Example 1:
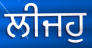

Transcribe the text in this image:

ਲੀਜਹੁ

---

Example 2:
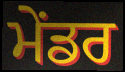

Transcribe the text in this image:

ਮੇਂਡਰ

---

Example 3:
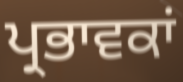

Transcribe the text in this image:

ਪ੍ਰਭਾਵਕਾਂ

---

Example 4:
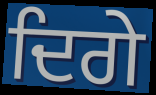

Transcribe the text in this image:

ਦਿਗੇ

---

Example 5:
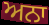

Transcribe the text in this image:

ਅਨਾ